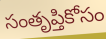
సంతృప్తికోసం